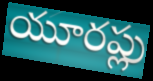
యూరప్లు